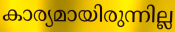
കാര്യമായിരുന്നില്ല